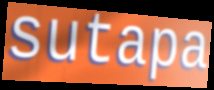
sutapa